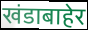
खंडाबाहेर